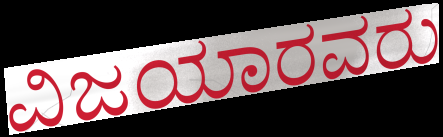
ವಿಜಯಾರವರು